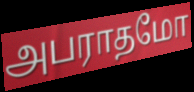
அபராதமோ